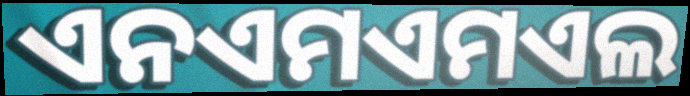
ଏନଏମଏମଏଲ